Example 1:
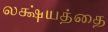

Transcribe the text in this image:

லக்ஷ்யத்தை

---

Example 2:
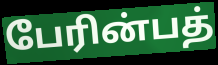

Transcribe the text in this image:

பேரின்பத்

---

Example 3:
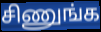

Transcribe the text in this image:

சிணுங்க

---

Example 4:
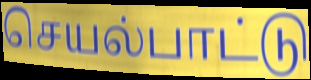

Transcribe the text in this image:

செயல்பாட்டு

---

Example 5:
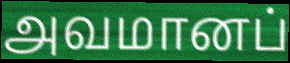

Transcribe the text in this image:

அவமானப்